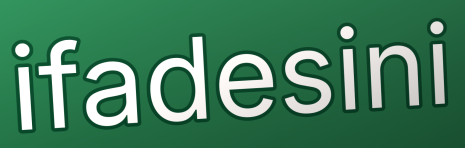
ifadesini